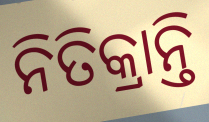
ନିତିକ୍ରାନ୍ତି